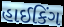
હાઈકિંગ